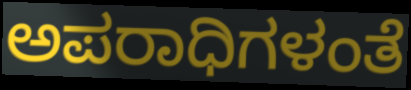
ಅಪರಾಧಿಗಳಂತೆ